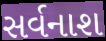
સર્વનાશ